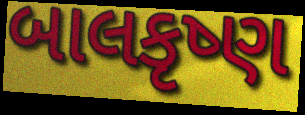
બાલકૃષ્ણ